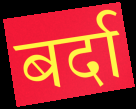
बर्दा